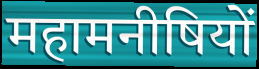
महामनीषियों